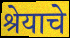
श्रेयाचे